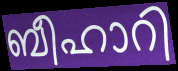
ബീഹാറി